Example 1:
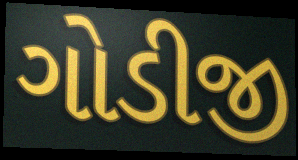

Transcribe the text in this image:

ગોડીજી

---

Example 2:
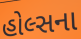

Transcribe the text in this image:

હોલ્સના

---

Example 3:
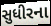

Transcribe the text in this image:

સુધીરના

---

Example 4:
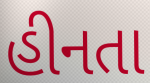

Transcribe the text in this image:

હીનતા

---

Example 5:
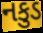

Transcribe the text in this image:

નકુડ